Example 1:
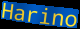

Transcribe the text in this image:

Harino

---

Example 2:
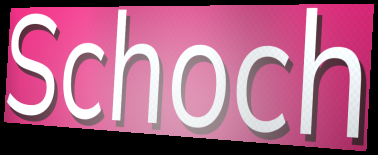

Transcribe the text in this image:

Schoch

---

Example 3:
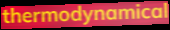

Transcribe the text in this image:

thermodynamical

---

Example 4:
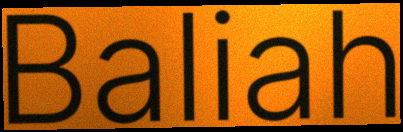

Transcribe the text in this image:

Baliah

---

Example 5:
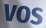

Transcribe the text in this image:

VOS